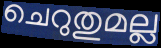
ചെറുതുമല്ല